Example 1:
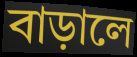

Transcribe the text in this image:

বাড়ালে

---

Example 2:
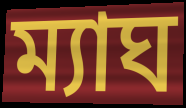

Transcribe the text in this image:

ম্যাঘ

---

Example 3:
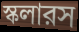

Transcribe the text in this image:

স্কলারস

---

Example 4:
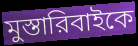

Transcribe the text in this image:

মুস্তারিবাইকে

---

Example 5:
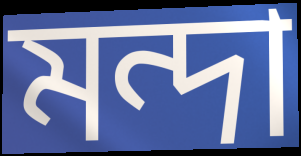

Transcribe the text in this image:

মন্দা